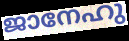
ജാനേഹു